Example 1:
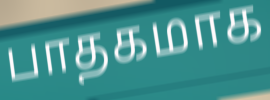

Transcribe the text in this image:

பாதகமாக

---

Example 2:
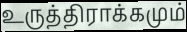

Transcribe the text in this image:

உருத்திராக்கமும்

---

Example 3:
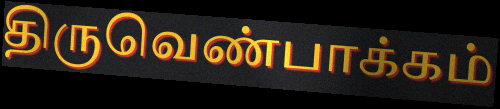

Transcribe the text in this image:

திருவெண்பாக்கம்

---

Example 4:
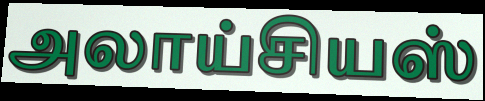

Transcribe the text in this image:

அலாய்சியஸ்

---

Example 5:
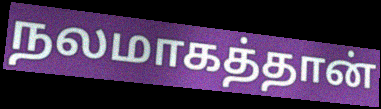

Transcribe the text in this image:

நலமாகத்தான்